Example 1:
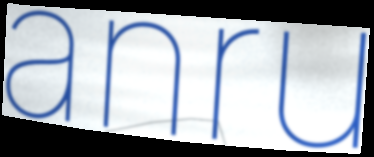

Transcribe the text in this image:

anru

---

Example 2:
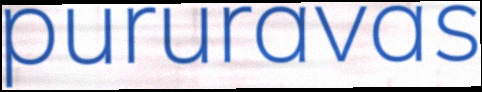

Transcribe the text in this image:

pururavas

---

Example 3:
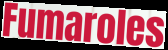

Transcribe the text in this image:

Fumaroles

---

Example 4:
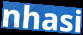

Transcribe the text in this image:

nhasi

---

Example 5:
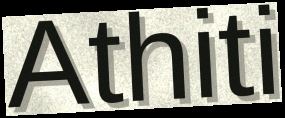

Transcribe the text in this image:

Athiti